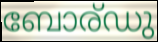
ബോര്ഡു